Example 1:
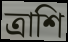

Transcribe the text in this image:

ত্রাশি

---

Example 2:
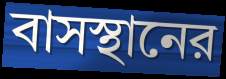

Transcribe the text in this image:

বাসস্থানের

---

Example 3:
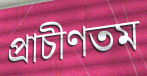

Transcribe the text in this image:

প্রাচীণতম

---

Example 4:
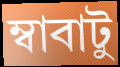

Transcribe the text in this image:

ম্বাবাটু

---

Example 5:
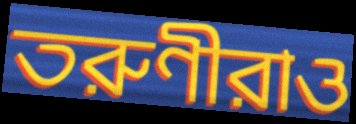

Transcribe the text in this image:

তরুণীরাও